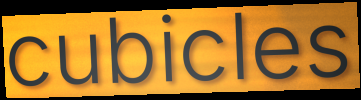
cubicles